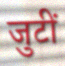
जुटीं